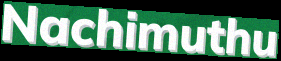
Nachimuthu